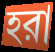
হরা